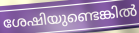
ശേഷിയുണ്ടെങ്കിൽ